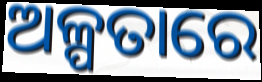
ଅଳ୍ପତାରେ